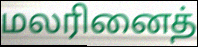
மலரினைத்